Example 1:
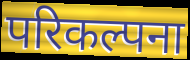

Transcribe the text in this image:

परिकल्पना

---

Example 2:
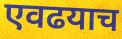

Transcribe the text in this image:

एवढयाच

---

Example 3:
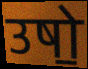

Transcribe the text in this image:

उषो॒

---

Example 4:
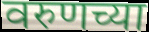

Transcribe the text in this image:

वरुणच्या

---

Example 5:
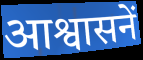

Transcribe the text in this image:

आश्वासनें